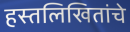
हस्तलिखितांचे